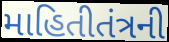
માહિતીતંત્રની